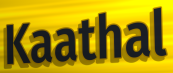
Kaathal